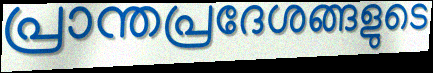
പ്രാന്തപ്രദേശങ്ങളുടെ